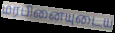
மரபினையுடைய